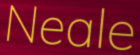
Neale